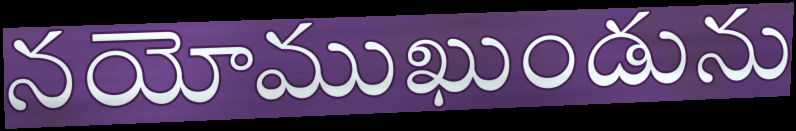
నయోముఖుండును